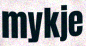
mykje